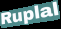
Ruplal